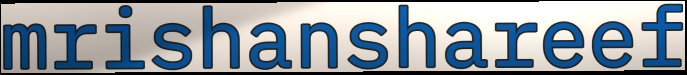
mrishanshareef